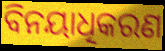
ବିନୟାଧିକରଣ